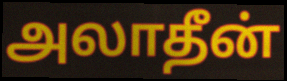
அலாதீன்